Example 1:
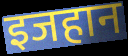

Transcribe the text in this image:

इजहान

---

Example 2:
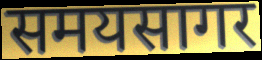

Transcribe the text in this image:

समयसागर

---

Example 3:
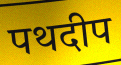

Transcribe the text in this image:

पथदीप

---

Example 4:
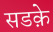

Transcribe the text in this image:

सडक़े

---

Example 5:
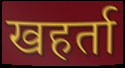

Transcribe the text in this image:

खहर्ता